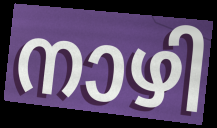
നാഴി